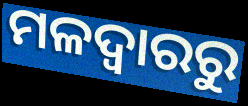
ମଳଦ୍ୱାରରୁ